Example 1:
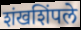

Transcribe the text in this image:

शंखशिंपले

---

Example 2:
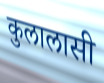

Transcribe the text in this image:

कुलालासी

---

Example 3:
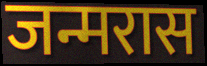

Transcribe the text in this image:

जन्मरास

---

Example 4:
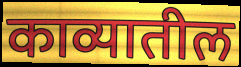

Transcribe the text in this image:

काव्यातील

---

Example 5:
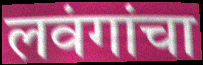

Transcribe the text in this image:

लवंगांचा